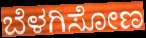
ಬೆಳಗಿಸೋಣ